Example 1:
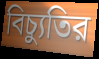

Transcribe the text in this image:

বিচ্যুতির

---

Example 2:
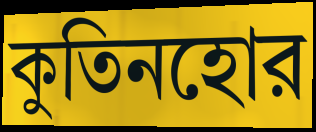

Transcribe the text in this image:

কুতিনহোর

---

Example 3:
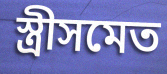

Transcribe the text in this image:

স্ত্রীসমেত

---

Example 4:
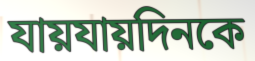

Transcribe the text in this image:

যায়যায়দিনকে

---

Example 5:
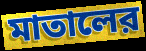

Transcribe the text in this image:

মাতালের